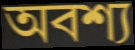
অবশ্য